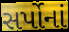
સર્પોનાં